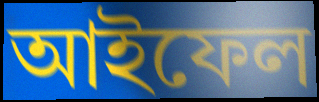
আইফেল